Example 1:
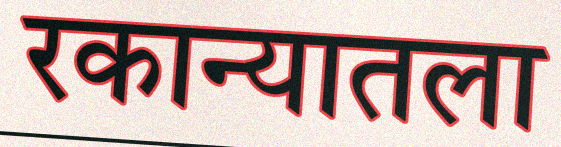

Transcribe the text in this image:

रकान्यातला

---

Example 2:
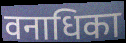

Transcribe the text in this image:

वनाधिका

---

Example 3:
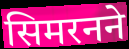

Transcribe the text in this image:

सिमरनने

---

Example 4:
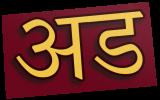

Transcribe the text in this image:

अड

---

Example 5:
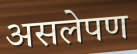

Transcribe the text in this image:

असलेपण